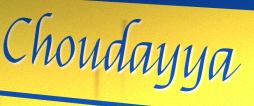
Choudayya